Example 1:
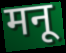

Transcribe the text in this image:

मनू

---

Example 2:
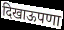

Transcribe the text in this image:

दिखाऊपणा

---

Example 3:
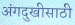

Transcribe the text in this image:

अंगदुखीसाठी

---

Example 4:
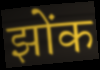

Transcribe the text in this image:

झोंक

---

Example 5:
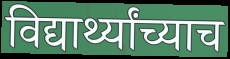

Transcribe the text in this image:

विद्यार्थ्यांच्याच